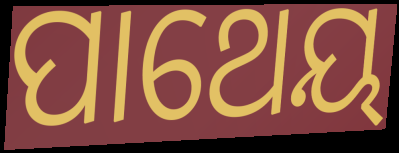
ପାଥେୟ